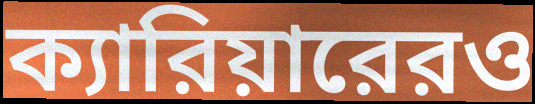
ক্যারিয়ারেরও